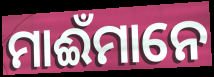
ମାଈଁମାନେ